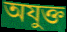
অযুক্ত